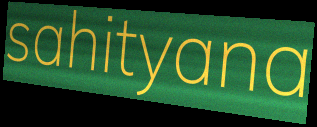
sahityana